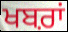
ਖਬ਼ਰਾਂ